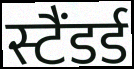
स्‍टैंडर्ड